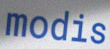
modis